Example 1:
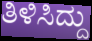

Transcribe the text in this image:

ತಿಳಿಸಿದ್ದು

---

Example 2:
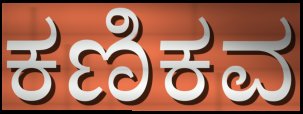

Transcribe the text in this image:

ಕಣಿಕವ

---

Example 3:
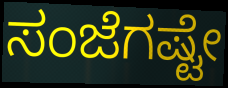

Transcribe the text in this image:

ಸಂಜೆಗಷ್ಟೇ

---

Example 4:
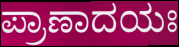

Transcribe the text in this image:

ಪ್ರಾಣಾದಯಃ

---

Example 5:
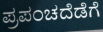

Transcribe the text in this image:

ಪ್ರಪಂಚದೆಡೆಗೆ